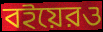
বইয়েরও